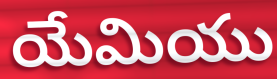
యేమియు